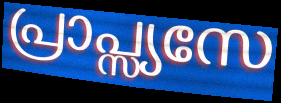
പ്രാപ്സ്യസേ